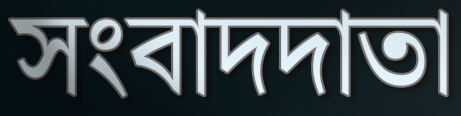
সংবাদদাতা